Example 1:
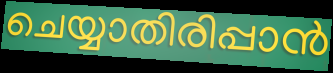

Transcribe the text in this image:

ചെയ്യാതിരിപ്പാൻ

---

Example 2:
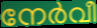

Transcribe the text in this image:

നേർവീ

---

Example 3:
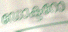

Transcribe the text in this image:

ഡോക്ടറോ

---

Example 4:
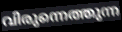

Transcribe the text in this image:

വിരുന്നെത്തുന്ന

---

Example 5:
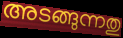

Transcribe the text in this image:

അടങ്ങുന്നതു